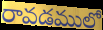
రావడములో